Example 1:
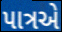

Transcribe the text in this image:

પાત્રએ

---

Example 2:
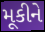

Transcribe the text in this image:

મૂકીને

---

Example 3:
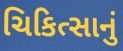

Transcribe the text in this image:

ચિકિત્સાનું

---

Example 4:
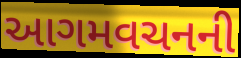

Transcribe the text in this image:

આગમવચનની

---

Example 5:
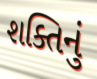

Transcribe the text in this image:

શક્તિનું